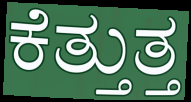
ಕೆತ್ತುತ್ತ